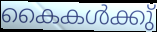
കൈകൾക്കു്